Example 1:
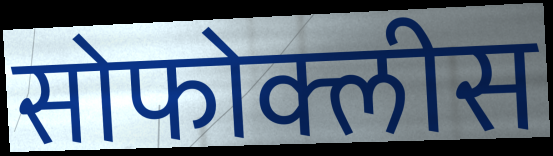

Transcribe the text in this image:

सोफोक्लीस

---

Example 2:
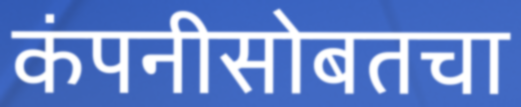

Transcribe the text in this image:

कंपनीसोबतचा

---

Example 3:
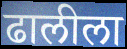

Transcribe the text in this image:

ढालीला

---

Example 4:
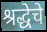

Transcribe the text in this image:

श्रद्धेचे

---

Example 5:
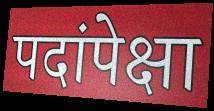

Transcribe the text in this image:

पदांपेक्षा